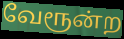
வேரூன்ற